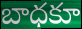
బాధకూ